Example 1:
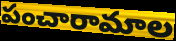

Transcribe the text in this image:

పంచారామాల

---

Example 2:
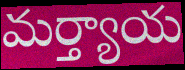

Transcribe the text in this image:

మర్త్యాయ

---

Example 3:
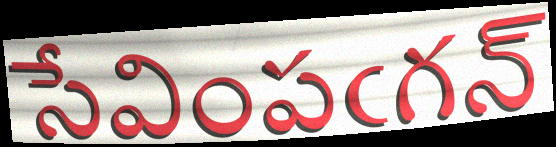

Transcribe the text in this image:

సేవింపఁగన్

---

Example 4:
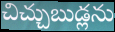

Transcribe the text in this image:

చిచ్చుబుడ్లను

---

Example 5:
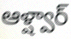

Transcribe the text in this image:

ఆళ్ష్వార్